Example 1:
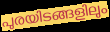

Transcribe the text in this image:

പുരയിടങ്ങളിലും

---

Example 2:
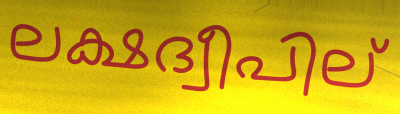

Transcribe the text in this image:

ലക്ഷദ്വീപില്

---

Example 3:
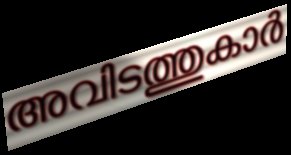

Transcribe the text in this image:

അവിടത്തുകാർ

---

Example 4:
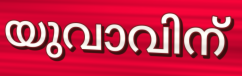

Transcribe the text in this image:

യുവാവിന്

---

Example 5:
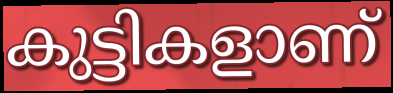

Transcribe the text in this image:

കുട്ടികളാണ്